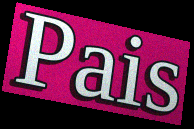
Pais